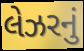
લેઝરનું